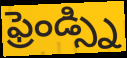
ఫ్రెండ్స్ని